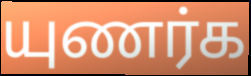
யுணர்க